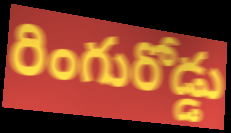
రింగురోడ్డు